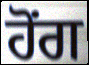
ਹੋਂਗ